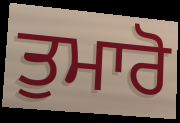
ਤੁਮਾਰੋ